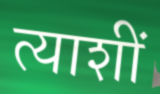
त्याशीं